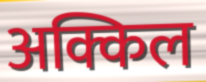
अक्किल